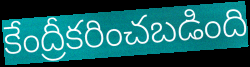
కేంద్రీకరించబడింది